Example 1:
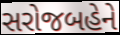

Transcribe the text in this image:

સરોજબહેને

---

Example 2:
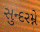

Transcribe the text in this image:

સુન્દરમ્ને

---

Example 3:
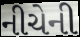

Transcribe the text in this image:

નીચેની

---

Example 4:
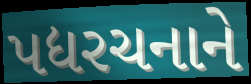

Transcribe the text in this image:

પદ્યરચનાને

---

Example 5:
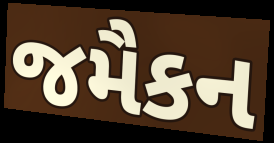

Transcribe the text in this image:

જમૈકન